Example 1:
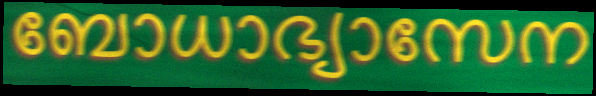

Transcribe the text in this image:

ബോധാഭ്യാസേന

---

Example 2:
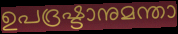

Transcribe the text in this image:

ഉപദ്രഷ്ടാനുമന്താ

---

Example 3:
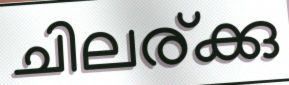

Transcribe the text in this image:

ചിലര്ക്കു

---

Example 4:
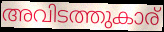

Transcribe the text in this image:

അവിടത്തുകാര്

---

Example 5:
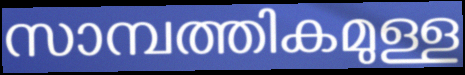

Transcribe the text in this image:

സാമ്പത്തികമുള്ള